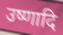
उष्णादि